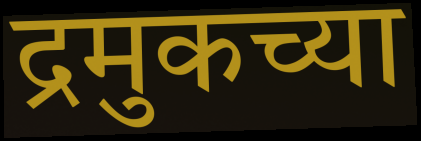
द्रमुकच्या